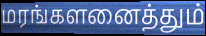
மரங்களனைத்தும்